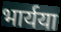
भार्यया